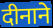
दीनाने